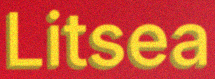
Litsea